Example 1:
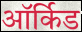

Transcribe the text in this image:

ऑर्किड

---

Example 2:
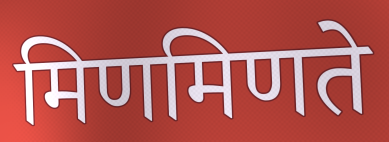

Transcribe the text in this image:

मिणमिणते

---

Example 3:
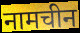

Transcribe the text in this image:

नामचीन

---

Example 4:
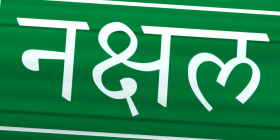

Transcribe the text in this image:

नक्षल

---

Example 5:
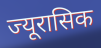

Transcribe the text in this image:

ज्यूरासिक